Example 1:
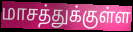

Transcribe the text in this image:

மாசத்துக்குள்ள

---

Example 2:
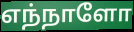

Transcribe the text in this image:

எந்நாளோ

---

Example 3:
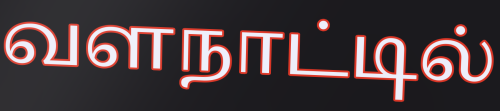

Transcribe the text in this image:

வளநாட்டில்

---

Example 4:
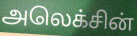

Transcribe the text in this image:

அலெக்சின்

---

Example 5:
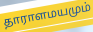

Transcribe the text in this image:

தாராளமயமும்